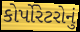
કોર્પોરેટરોનું